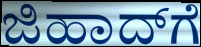
ಜಿಹಾದ್‌ಗೆ